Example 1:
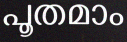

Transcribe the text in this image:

പൂതമാം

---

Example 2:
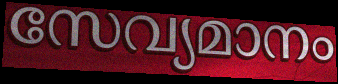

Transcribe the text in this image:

സേവ്യമാനം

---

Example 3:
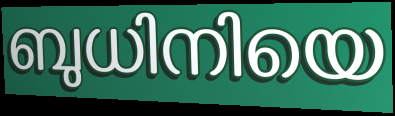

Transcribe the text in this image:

ബുധിനിയെ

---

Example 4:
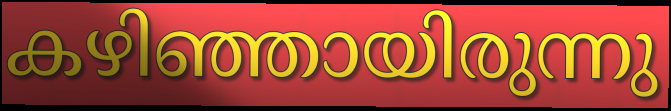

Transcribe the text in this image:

കഴിഞ്ഞായിരുന്നു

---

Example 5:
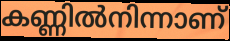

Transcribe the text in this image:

കണ്ണിൽനിന്നാണ്